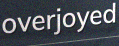
overjoyed